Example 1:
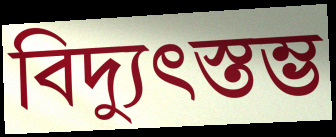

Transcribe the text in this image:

বিদ্যুৎস্তম্ভ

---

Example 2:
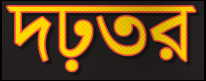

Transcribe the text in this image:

দঢ়তর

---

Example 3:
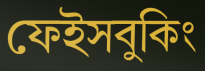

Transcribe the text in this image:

ফেইসবুকিং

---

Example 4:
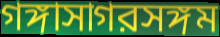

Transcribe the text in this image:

গঙ্গাসাগরসঙ্গম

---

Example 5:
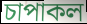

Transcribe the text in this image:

চাপাকল